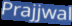
Prajjwal